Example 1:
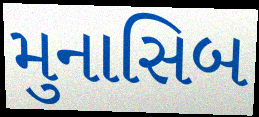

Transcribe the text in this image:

મુનાસિબ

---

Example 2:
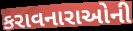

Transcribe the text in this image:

કરાવનારાઓની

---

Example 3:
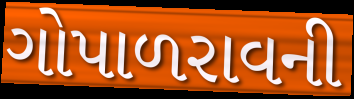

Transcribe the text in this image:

ગોપાળરાવની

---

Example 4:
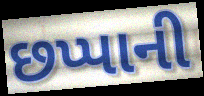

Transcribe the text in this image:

છપ્પાની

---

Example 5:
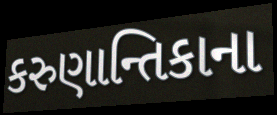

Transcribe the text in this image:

કરુણાન્તિકાના